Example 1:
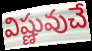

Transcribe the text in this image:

విష్ణువుచే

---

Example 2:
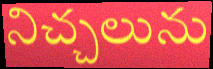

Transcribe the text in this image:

నిచ్చలును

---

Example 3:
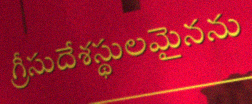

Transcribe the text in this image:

గ్రీసుదేశస్థులమైనను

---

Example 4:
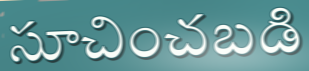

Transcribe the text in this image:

సూచించబడి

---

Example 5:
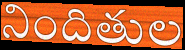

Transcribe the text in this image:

నిందితుల